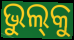
ଭୁଲ୍‍କୁ